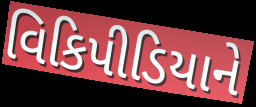
વિકિપીડિયાને